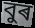
বুৰ